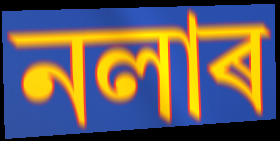
নলাৰ